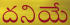
దనియే